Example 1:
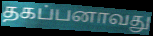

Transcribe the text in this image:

தகப்பனாவது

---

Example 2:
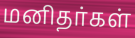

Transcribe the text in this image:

மனிதர்கள்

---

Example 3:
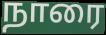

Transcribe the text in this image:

நாரை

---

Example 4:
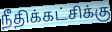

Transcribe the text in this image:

நீதிக்கட்சிக்கு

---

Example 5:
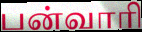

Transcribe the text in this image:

பன்வாரி